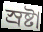
স্রষ্টা